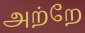
அற்றே